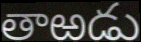
తాఱడు